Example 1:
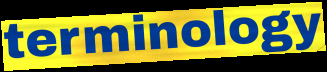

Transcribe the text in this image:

terminology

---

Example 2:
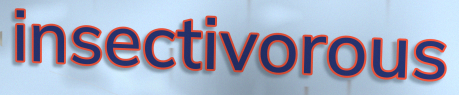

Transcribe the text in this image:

insectivorous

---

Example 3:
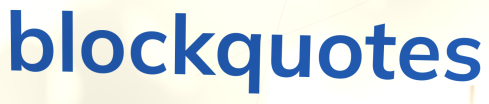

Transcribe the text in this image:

blockquotes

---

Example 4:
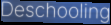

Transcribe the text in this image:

Deschooling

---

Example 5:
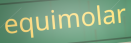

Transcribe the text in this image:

equimolar